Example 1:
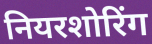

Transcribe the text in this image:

नियरशोरिंग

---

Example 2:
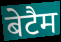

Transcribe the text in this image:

बेटैम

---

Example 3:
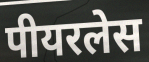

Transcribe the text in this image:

पीयरलेस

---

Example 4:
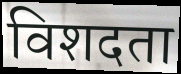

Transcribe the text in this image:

विशदता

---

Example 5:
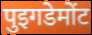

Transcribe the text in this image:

पुइगडेमोंट